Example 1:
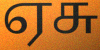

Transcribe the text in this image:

ஏசு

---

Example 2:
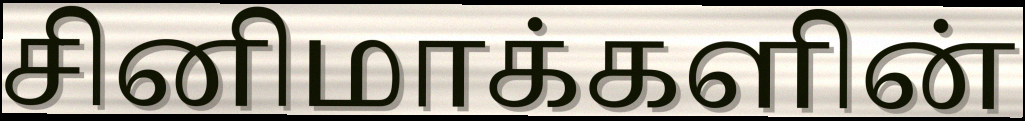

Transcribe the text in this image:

சினிமாக்களின்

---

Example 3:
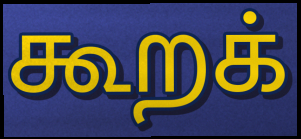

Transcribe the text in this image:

கூறக்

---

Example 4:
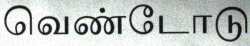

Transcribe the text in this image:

வெண்டோடு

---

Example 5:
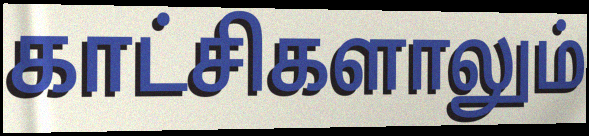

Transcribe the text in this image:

காட்சிகளாலும்